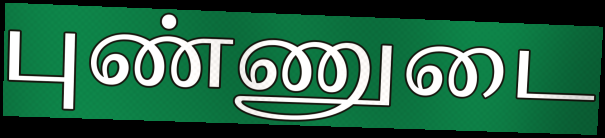
புண்ணுடை